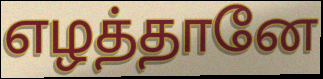
எழத்தானே